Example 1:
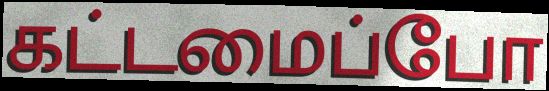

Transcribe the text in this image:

கட்டமைப்போ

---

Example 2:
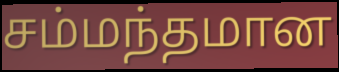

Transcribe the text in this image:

சம்மந்தமான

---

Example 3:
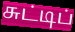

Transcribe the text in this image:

சுட்டிப்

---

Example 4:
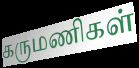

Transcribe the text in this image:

கருமணிகள்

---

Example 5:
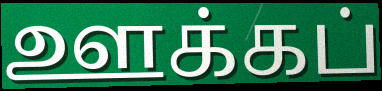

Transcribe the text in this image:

ஊக்கப்